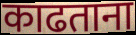
काढताना